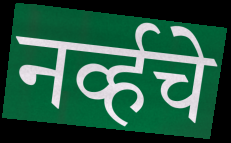
नर्व्हचे